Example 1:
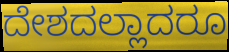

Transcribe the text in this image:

ದೇಶದಲ್ಲಾದರೂ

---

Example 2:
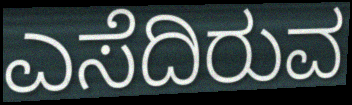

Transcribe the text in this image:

ಎಸೆದಿರುವ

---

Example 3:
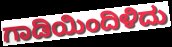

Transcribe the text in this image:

ಗಾಡಿಯಿಂದಿಳಿದು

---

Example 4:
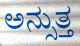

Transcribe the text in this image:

ಅನ್ಸುತ್ತ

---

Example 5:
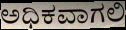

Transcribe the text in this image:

ಅಧಿಕವಾಗಲಿ